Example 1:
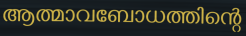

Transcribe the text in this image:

ആത്മാവബോധത്തിന്റെ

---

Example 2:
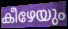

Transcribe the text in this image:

കീഴേയും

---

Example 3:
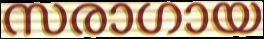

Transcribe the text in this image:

സരാഗായ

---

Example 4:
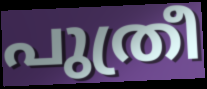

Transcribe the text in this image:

പുത്രീ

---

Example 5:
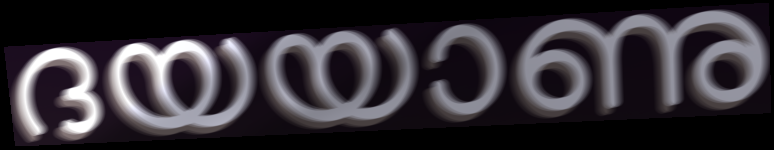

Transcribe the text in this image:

ദയയാണു